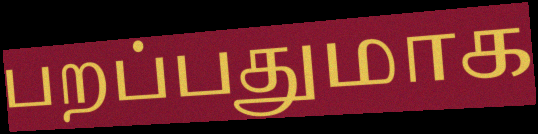
பறப்பதுமாக